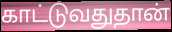
காட்டுவதுதான்